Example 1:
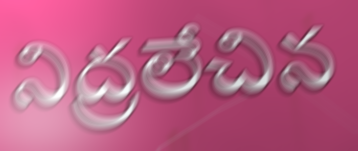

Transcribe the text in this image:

నిద్రలేచిన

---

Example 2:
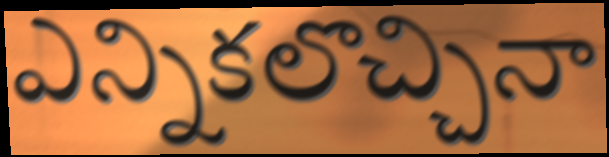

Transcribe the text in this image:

ఎన్నికలొచ్చినా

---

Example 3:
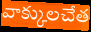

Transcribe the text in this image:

వాక్కులచేత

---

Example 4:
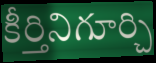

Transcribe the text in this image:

కీర్తినిగూర్చి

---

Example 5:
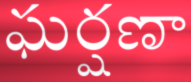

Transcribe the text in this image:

ఘర్షణా